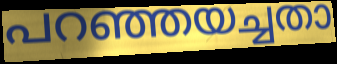
പറഞ്ഞയച്ചതാ